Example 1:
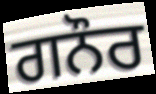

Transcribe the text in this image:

ਗਨੌਰ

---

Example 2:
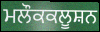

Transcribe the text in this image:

ਮਲੌਕਕਲੂਸ਼ਨ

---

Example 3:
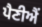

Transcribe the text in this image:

ਪੈਣੀਐਂ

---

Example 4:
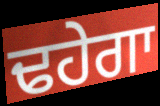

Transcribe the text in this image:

ਢਹੇਗਾ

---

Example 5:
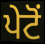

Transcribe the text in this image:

ਪੇਟੋਂ